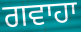
ਗਵਾਹਾ